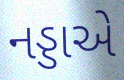
નડ્ડાએ